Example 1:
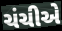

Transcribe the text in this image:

ચંચીએ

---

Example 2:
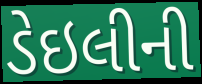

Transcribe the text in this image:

ડેઇલીની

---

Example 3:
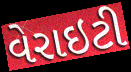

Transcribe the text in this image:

વેરાઇટી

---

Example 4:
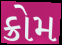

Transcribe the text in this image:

ક્રોમ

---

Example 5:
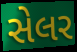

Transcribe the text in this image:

સેલર